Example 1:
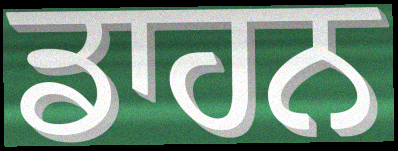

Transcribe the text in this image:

ਡਾਹਨ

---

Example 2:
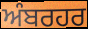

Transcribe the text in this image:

ਅੰਬਰਹਰ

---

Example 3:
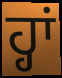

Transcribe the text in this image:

ਹ੍ਹਾਂ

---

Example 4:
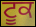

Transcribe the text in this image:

ਟੂਕ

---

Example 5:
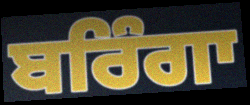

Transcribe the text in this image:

ਬਰਿੰਗਾ